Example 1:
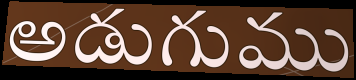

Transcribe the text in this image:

అడుగుము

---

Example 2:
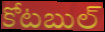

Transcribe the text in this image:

కోటబుల్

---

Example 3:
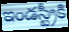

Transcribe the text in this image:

ఇండస్ట్రీకి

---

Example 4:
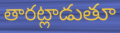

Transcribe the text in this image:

తారట్లాడుతూ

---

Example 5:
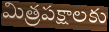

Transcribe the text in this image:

మిత్రపక్షాలకు